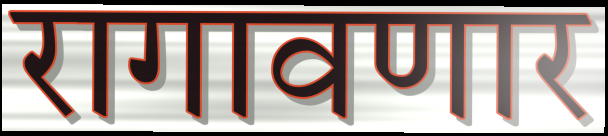
रागावणार